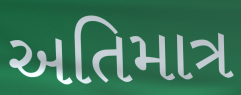
અતિમાત્ર